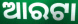
ଆରଟା